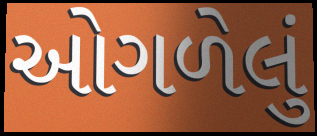
ઓગળેલું